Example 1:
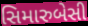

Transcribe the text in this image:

સિમારુબેસી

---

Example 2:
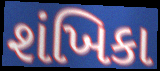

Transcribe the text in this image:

શંખિકા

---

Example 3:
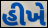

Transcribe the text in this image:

હીખે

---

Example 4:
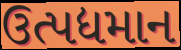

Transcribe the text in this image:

ઉત્પદ્યમાન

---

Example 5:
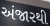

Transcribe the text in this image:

અંજારથી